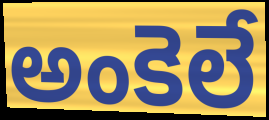
అంకెలే